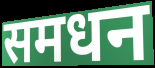
समधन